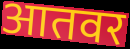
आतवर